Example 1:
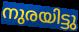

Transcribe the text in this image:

നുരയിട്ടു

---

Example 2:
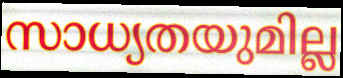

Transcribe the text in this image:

സാധ്യതയുമില്ല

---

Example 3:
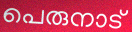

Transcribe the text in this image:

പെരുനാട്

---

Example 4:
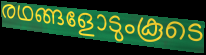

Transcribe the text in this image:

രഥങ്ങളോടുംകൂടെ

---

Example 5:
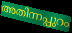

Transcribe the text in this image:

അതിന്നപ്പുറം